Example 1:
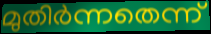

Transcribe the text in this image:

മുതിർന്നതെന്ന്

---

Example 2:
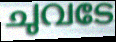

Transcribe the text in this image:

ചുവടേ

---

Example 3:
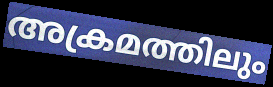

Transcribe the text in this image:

അക്രമത്തിലും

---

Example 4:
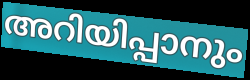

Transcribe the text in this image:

അറിയിപ്പാനും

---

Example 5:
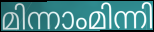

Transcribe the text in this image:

മിന്നാംമിന്നി